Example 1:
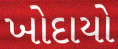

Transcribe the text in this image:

ખોદાયો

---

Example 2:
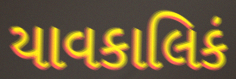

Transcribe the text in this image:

યાવકાલિકં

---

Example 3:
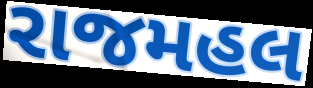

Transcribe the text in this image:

રાજમહલ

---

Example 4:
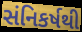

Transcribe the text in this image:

સંનિકર્ષથી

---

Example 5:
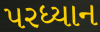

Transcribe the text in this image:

પરધ્યાન